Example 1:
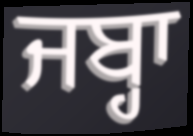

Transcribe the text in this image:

ਜਬ੍ਹਾ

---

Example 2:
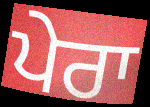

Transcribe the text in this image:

ਪੇਰਾ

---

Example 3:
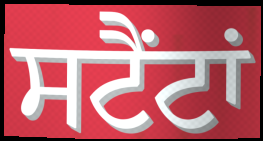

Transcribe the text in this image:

ਸਟੈਂਟਾਂ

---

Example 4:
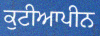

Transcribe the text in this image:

ਕੁਟੀਆਪੀਨ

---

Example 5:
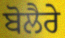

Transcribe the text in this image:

ਬੋਲੈਰੇ